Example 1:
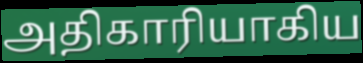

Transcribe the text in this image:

அதிகாரியாகிய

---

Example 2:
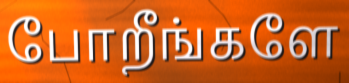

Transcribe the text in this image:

போறீங்களே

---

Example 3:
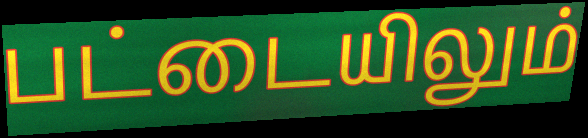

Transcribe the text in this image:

பட்டையிலும்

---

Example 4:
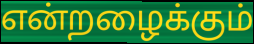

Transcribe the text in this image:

என்றழைக்கும்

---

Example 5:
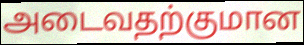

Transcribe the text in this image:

அடைவதற்குமான